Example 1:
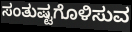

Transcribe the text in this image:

ಸಂತುಷ್ಟಗೊಳಿಸುವ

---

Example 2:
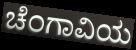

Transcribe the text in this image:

ಚೆಂಗಾವಿಯ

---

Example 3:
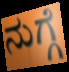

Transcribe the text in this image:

ನುಗ್ಗೆ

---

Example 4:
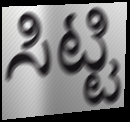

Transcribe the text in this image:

ಸಿಟ್ಟಿ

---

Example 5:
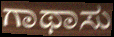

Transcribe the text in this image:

ಗಾಥಾಸು